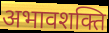
अभावशक्ति